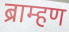
ब्राम्हण